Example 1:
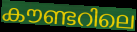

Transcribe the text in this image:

കൗണ്ടറിലെ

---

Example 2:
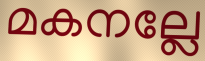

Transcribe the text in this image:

മകനല്ലേ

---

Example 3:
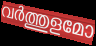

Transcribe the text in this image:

വർത്തുളമോ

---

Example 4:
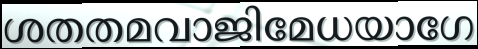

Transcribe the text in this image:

ശതതമവാജിമേധയാഗേ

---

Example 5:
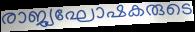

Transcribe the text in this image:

രാജ്യഘോഷകരുടെ